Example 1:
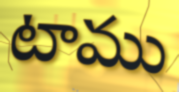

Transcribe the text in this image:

టాము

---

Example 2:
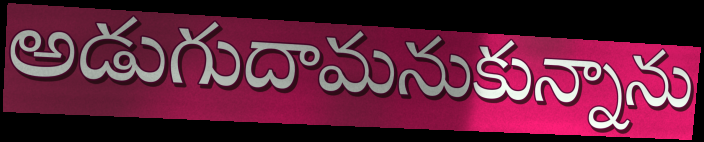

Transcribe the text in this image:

అడుగుదామనుకున్నాను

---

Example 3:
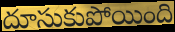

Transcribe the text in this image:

దూసుకుపోయింది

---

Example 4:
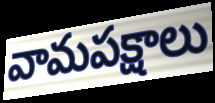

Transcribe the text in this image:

వామపక్షాలు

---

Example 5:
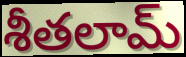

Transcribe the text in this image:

శీతలామ్